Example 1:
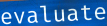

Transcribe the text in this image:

evaluate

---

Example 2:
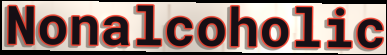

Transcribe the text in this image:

Nonalcoholic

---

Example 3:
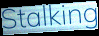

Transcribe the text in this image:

Stalking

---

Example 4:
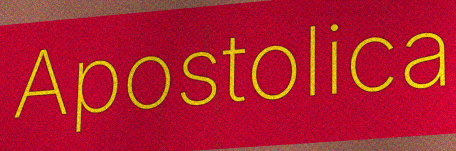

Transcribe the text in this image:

Apostolica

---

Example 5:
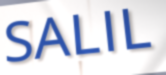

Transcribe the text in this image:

SALIL